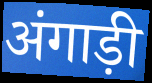
अंगाड़ी